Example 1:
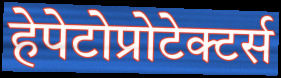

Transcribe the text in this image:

हेपेटोप्रोटेक्टर्स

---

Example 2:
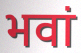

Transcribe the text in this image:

भवां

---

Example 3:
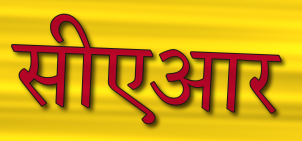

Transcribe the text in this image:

सीएआर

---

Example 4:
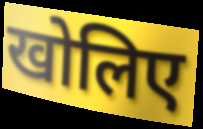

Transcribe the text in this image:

खोलिए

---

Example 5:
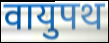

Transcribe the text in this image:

वायुपथ